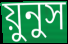
য়ুনুস